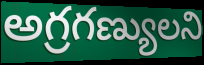
అగ్రగణ్యులని